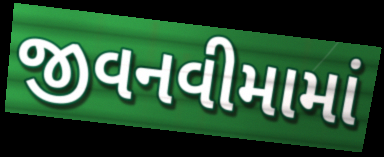
જીવનવીમામાં